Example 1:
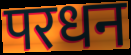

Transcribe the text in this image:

परधन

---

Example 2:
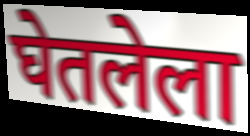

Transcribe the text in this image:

घेतलेला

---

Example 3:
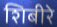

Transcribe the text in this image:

शिबीरे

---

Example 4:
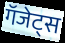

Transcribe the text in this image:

गॅजेट्स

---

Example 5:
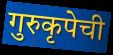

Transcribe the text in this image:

गुरुकृपेची